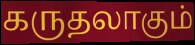
கருதலாகும்